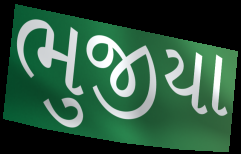
ભુજીયા